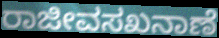
ರಾಜೀವಸಖನಾಣೆ